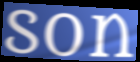
son